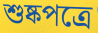
শুষ্কপত্রে